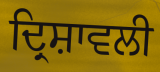
ਦ੍ਰਿਸ਼ਾਵਲੀ